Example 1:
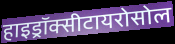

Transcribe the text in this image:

हाइड्रॉक्सीटायरोसोल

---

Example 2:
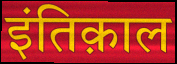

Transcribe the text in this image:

इंतिक़ाल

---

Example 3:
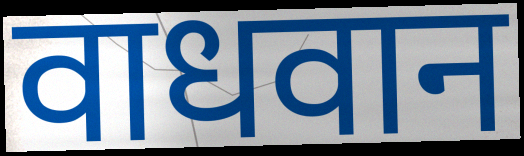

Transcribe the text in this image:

वाधवान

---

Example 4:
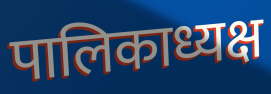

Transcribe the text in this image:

पालिकाध्यक्ष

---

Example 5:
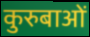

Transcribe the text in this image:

कुरुबाओं